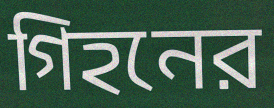
গিহনের